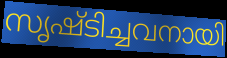
സൃഷ്ടിച്ചവനായി